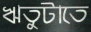
ঋতুটাতে